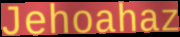
Jehoahaz